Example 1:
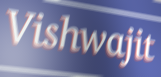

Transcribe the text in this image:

Vishwajit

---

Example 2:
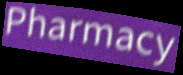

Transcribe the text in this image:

Pharmacy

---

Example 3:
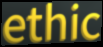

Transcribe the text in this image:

ethic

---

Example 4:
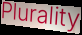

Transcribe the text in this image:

Plurality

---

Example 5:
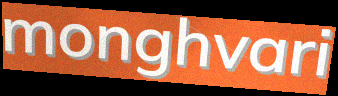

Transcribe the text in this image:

monghvari